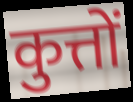
कुत्तों